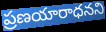
ప్రణయారాధనని